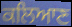
ਕਲਿਆਣ